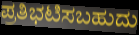
ಪ್ರತಿಭಟಿಸಬಹುದು